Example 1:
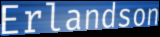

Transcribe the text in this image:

Erlandson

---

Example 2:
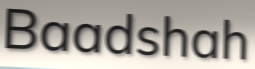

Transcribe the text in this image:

Baadshah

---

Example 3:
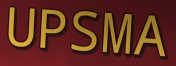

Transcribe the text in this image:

UPSMA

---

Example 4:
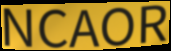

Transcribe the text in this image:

NCAOR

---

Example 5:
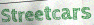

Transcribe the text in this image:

Streetcars